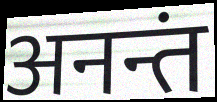
अनन्तं